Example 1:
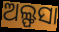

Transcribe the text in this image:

ଅଲ୍ଫସା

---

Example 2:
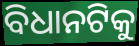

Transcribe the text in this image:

ବିଧାନଟିକୁ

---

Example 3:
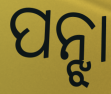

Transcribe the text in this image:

ପନ୍ଝା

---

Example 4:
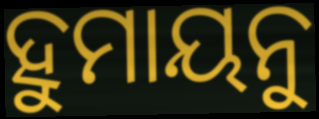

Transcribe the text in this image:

ହୁମାୟନୁ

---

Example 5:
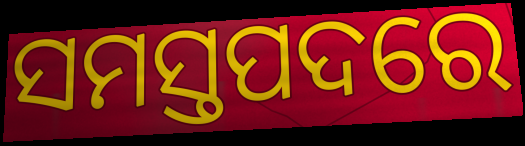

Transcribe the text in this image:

ସମସ୍ତପଦରେ